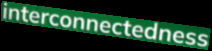
interconnectedness